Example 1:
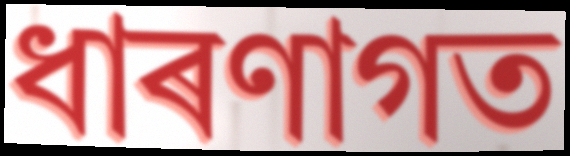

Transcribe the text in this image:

ধাৰণাগত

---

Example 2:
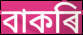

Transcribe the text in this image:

বাকৰি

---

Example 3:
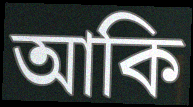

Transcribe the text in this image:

আকি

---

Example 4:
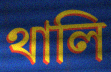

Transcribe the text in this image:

থালি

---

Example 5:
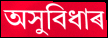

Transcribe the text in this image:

অসুবিধাৰ